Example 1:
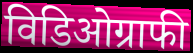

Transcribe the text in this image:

विडिओग्राफी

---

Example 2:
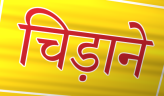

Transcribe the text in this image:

चिड़ाने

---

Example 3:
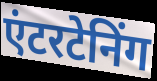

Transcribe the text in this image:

एंटरटेनिंग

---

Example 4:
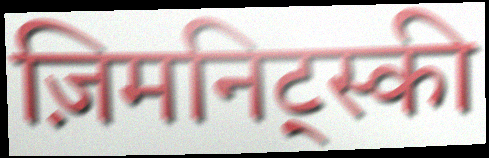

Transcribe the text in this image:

ज़िमनिट्स्की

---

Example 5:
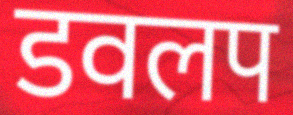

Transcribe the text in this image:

डवलप